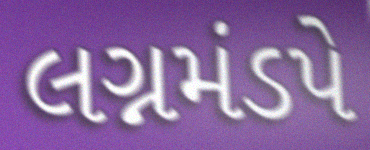
લગ્નમંડપે